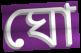
ঘো